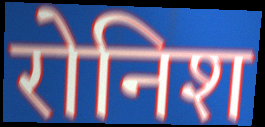
रोनिश